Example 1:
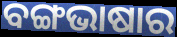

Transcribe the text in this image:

ବଙ୍ଗଭାଷାର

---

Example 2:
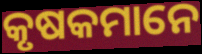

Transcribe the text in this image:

କୃଷକମାନେ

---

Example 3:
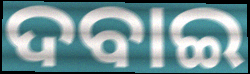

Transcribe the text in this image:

ଦବାଇ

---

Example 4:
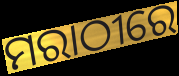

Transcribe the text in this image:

ମରାଠୀରେ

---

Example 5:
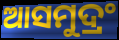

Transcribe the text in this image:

ଆସମୁଦ୍ରଂ